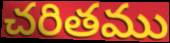
చరితము